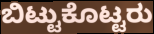
ಬಿಟ್ಟುಕೊಟ್ಟರು